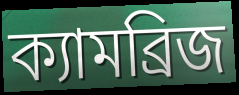
ক্যামব্রিজ